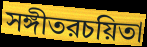
সঙ্গীতরচয়িতা